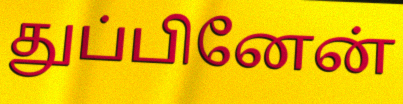
துப்பினேன்